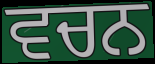
ਵਚਨ